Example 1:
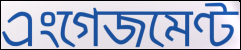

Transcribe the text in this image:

এংগেজমেণ্ট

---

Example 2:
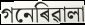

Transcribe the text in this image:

গনেৰিৱালা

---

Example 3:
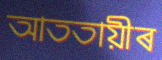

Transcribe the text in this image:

আততায়ীৰ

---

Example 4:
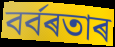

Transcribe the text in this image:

বৰ্বৰতাৰ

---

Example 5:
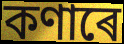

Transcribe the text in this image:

কণাৰে